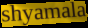
shyamala